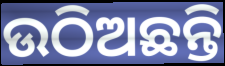
ଉଠିଅଛନ୍ତି